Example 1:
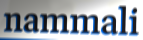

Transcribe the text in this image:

nammali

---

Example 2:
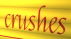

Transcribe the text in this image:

crushes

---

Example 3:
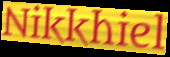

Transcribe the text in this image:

Nikkhiel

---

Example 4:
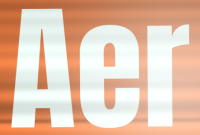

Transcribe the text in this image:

Aer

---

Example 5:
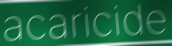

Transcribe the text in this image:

acaricide